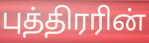
புத்திரரின்